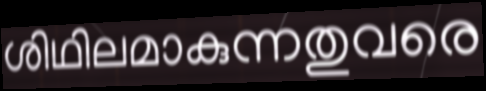
ശിഥിലമാകുന്നതുവരെ